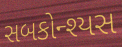
સબકોન્શ્યસ